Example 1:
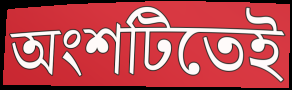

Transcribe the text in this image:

অংশটিতেই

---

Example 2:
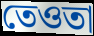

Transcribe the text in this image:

তেওতা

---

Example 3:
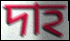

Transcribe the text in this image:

দাহ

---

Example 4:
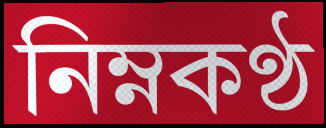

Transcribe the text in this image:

নিম্নকণ্ঠ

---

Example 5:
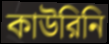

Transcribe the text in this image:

কাউরিনি